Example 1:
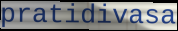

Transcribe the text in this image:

pratidivasa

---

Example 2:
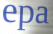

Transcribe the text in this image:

epa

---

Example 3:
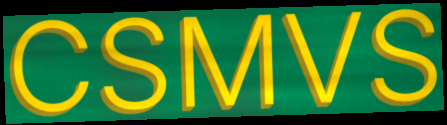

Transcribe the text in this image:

CSMVS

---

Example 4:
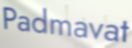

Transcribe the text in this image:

Padmavat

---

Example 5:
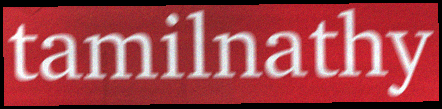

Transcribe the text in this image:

tamilnathy